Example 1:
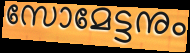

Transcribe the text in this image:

സോമേട്ടനും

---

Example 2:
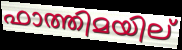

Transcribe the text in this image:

ഫാത്തിമയില്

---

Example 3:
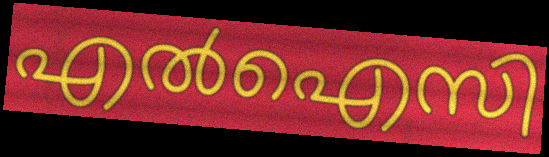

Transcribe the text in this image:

എൽഐസി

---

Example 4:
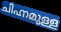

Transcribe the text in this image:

ചിഹ്നമുള്ള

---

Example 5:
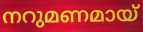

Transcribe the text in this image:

നറുമണമായ്